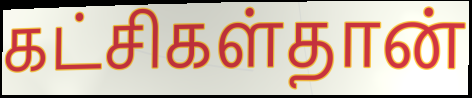
கட்சிகள்தான்